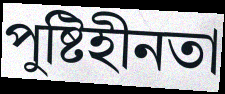
পুষ্টিহীনতা